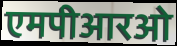
एमपीआरओ